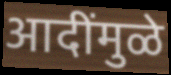
आदींमुळे